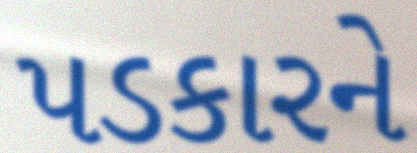
પડકારને